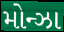
મોન્ઝા